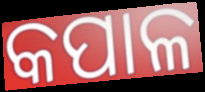
କପାଳ